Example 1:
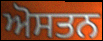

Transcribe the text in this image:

ਅੋਸਤਨ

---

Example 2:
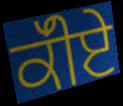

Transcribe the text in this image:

ਕੱੀਏ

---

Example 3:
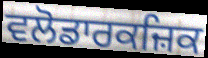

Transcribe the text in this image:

ਵਲੋਡਾਰਕਜ਼ਿਕ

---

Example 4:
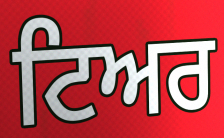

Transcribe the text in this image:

ਟਿਅਰ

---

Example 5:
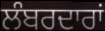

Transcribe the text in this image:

ਲੰਬਰਦਾਰਾਂ